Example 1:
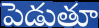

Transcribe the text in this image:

పెడుతూ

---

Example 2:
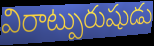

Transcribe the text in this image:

విరాట్పురుషుడు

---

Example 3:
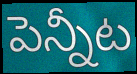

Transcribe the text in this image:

పెన్నీట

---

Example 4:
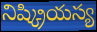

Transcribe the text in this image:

నిష్క్రియస్య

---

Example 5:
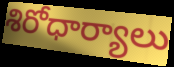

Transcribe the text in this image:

శిరోధార్యాలు